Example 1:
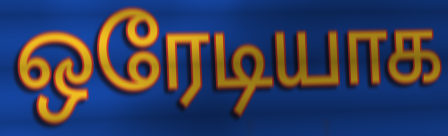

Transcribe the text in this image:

ஒரேடியாக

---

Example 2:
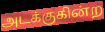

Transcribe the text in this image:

அடக்குகின்ற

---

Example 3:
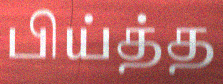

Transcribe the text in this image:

பிய்த்த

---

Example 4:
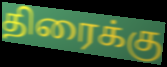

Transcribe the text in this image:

திரைக்கு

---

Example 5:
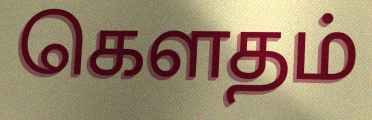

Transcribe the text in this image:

கௌதம்